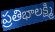
ప్రతిభాలక్ష్మి